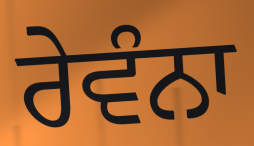
ਰੇਵੰਨਾ